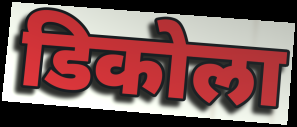
डिकोला